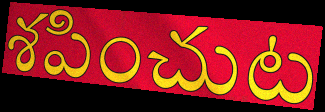
శపించుట